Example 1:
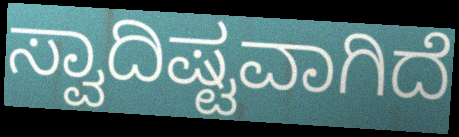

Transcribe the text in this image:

ಸ್ವಾದಿಷ್ಟವಾಗಿದೆ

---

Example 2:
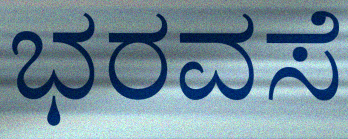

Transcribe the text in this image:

ಭರವಸೆ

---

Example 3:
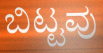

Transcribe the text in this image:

ಬಿಟ್ಟವು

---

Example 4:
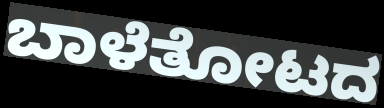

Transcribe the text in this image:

ಬಾಳೆತೋಟದ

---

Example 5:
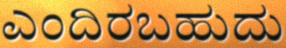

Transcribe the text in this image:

ಎಂದಿರಬಹುದು